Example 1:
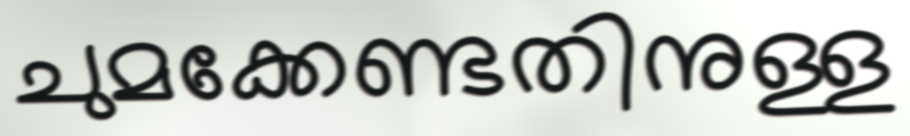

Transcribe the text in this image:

ചുമക്കേണ്ടതിനുള്ള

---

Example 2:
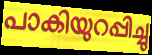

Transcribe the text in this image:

പാകിയുറപ്പിച്ചു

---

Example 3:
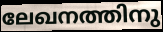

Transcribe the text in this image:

ലേഖനത്തിനു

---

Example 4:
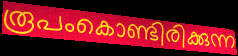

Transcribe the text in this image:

രൂപംകൊണ്ടിരിക്കുന്ന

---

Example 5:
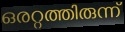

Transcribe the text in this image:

ഒരറ്റത്തിരുന്ന്